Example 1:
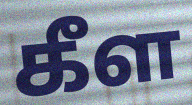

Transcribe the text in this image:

கீள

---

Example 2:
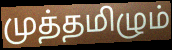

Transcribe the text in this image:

முத்தமிழும்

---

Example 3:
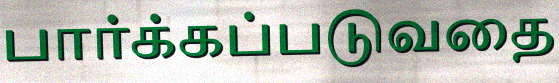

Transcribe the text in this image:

பார்க்கப்படுவதை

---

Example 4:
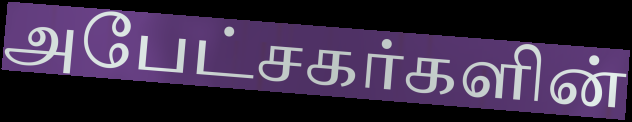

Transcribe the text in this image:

அபேட்சகர்களின்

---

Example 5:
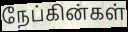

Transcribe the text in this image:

நேப்கின்கள்